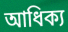
আধিক্য